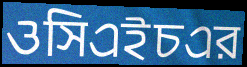
ওসিএইচএর